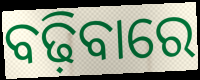
ବଢ଼ିବାରେ